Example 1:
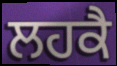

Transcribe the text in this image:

ਲਹਕੈ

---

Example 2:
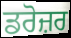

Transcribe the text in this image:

ਡਰੋਜ਼ਰ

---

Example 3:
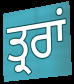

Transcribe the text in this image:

ਤ੍ਰਰਾਂ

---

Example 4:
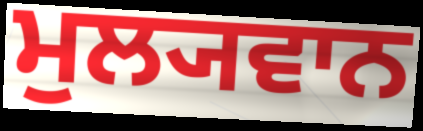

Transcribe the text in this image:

ਮੁਲ੍ਯਵਾਨ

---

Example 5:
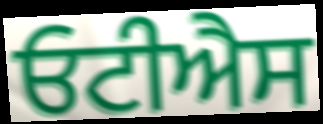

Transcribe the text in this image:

ਓਟੀਐਸ